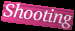
Shooting